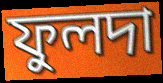
ফুলদা